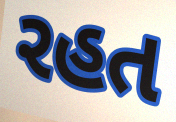
રહત